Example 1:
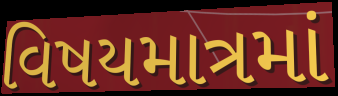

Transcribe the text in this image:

વિષયમાત્રમાં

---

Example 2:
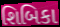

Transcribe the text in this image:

શિબિકા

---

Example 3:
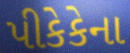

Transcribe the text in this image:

પીકેકેના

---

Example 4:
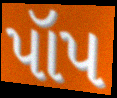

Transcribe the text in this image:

પૉપ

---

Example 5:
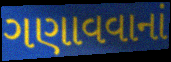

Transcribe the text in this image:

ગણાવવાનાં